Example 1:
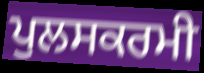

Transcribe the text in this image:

ਪੁਲਸਕਰਮੀ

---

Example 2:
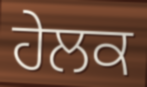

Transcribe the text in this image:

ਹੇਲਕ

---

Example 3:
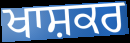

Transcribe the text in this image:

ਖਾਸ਼ਕਰ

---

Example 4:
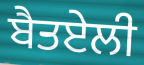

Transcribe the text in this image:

ਬੈਤਏਲੀ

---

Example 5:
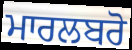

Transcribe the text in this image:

ਮਾਰਲਬਰੋ